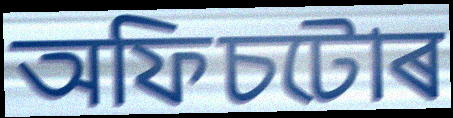
অফিচটোৰ